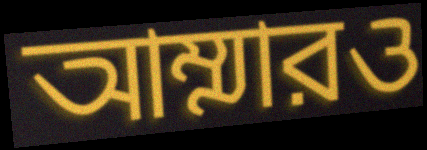
আম্মারও